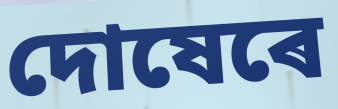
দোষেৰে